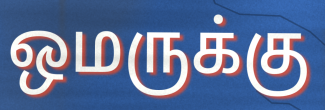
ஒமருக்கு